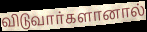
விடுவார்களானால்